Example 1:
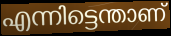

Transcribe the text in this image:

എന്നിട്ടെന്താണ്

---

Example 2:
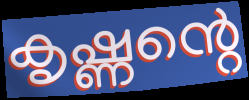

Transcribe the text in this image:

കൃഷ്ണന്റെ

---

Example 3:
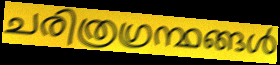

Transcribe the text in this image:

ചരിത്രഗ്രന്ഥങ്ങൾ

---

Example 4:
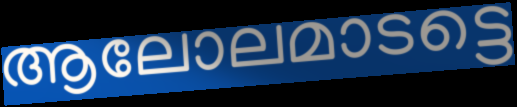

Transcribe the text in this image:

ആലോലമാടട്ടെ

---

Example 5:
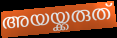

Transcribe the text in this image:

അയയ്ക്കരുത്